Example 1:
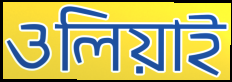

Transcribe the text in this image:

ওলিয়াই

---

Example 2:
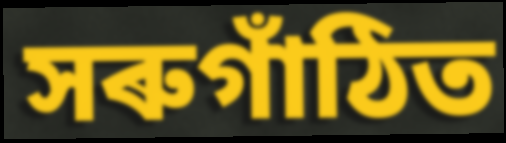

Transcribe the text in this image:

সৰুগাঁঠিত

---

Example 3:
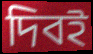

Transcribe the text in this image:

দিবই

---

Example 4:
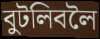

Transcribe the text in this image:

বুটলিবলৈ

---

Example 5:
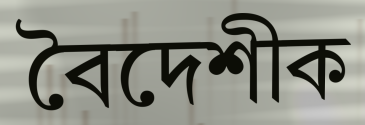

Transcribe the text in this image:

বৈদেশীক